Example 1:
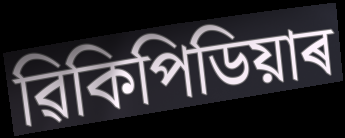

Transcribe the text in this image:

ৱিকিপিডিয়াৰ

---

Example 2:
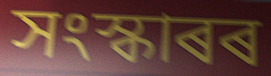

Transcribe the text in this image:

সংস্কাৰৰ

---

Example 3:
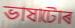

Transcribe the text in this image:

ভাষাটোৰ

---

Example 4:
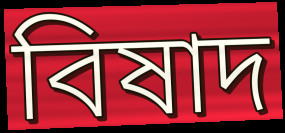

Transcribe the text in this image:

বিষাদ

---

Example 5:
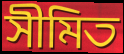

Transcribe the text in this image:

সীমিত